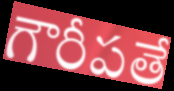
గౌరీపతే